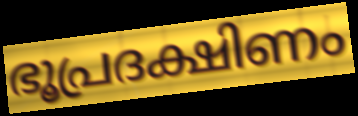
ഭൂപ്രദക്ഷിണം